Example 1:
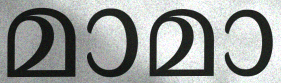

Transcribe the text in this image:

മാമാ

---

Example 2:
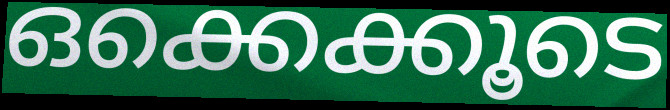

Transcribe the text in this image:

ഒക്കെക്കൂടെ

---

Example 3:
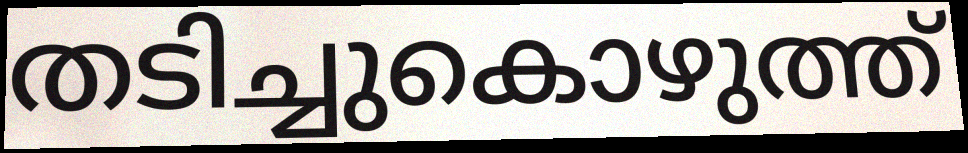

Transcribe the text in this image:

തടിച്ചുകൊഴുത്ത്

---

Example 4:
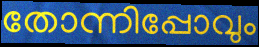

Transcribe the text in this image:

തോന്നിപ്പോവും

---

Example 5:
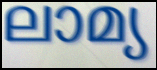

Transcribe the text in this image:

ലാമ്യ